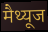
मैथ्यूज